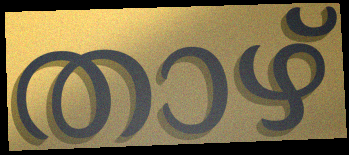
താഴ്